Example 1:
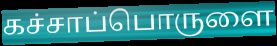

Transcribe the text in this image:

கச்சாப்பொருளை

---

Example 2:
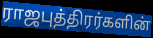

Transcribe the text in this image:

ராஜபுத்திரர்களின்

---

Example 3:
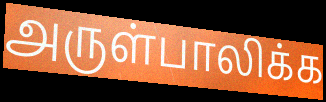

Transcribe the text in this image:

அருள்பாலிக்க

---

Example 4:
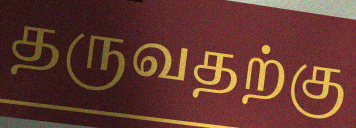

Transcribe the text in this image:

தருவதற்கு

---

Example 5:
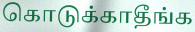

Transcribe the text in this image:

கொடுக்காதீங்க